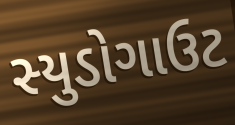
સ્યુડોગાઉટ